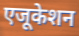
एजूकेशन